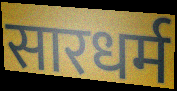
सारधर्म